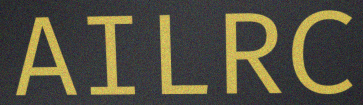
AILRC